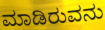
ಮಾಡಿರುವನು